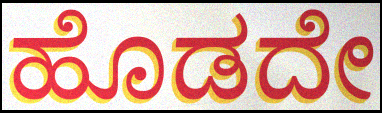
ಹೊಡದೇ